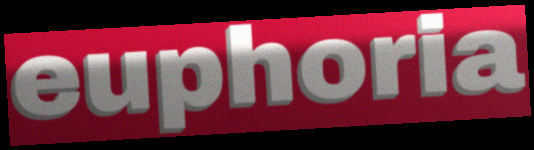
euphoria